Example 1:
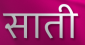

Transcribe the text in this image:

साती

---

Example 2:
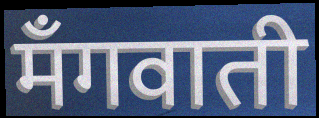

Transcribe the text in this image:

मँगवाती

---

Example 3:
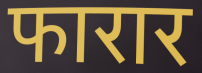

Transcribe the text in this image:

फारार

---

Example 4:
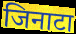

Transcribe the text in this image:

जिनाटा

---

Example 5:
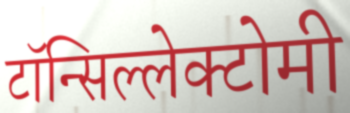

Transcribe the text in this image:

टॉन्सिल्लेक्टोमी